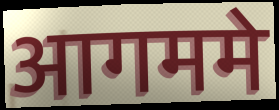
आगममे